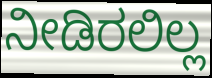
ನೀಡಿರಲಿಲ್ಲ